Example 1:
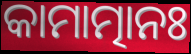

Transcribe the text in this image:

କାମାତ୍ମାନଃ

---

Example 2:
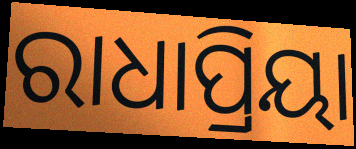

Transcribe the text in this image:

ରାଧାପ୍ରିୟା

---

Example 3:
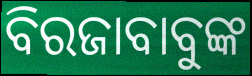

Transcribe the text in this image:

ବିରଜାବାବୁଙ୍କ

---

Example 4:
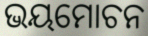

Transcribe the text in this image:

ଭୟମୋଚନ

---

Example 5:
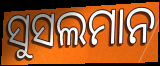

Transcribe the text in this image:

ସୁସଲମାନ